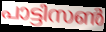
പാട്ടിസൺ